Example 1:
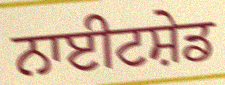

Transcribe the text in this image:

ਨਾਈਟਸ਼ੇਡ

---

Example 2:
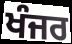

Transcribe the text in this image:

ਖੰਜਰ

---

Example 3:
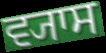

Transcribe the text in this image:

ਵ੍ਯਾਸ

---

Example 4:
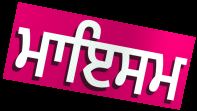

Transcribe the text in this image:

ਮਾਇਸਮ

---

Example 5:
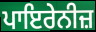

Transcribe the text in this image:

ਪਾਇਰੇਨੀਜ਼